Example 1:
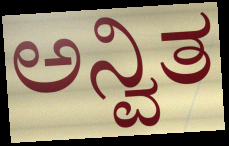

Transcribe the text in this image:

ಅನ್ವಿತ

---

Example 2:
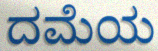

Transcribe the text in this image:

ದಮೆಯ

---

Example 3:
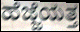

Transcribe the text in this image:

ಹೆಜ್ಜೆಯತ್ತ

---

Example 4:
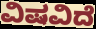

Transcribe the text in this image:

ವಿಷವಿದೆ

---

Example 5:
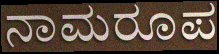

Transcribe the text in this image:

ನಾಮರೂಪ